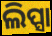
ଲିପ୍ସା